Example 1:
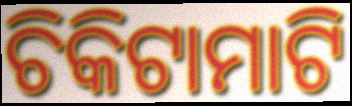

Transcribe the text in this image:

ଚିକିଟାମାଟି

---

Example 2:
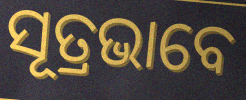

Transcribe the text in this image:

ସୂତ୍ରଭାବେ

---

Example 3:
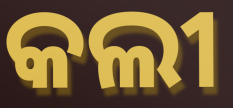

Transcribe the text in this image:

କଲୀ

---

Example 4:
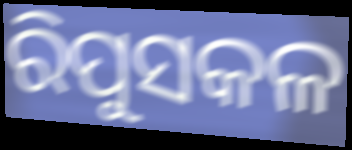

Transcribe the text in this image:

ରିପୁସକଳ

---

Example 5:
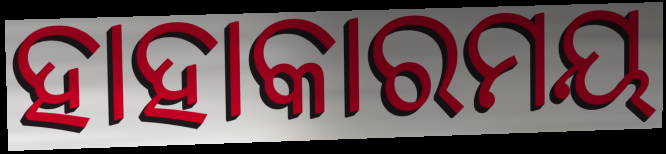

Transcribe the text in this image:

ହାହାକାରମୟ